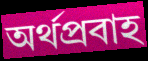
অর্থপ্রবাহ